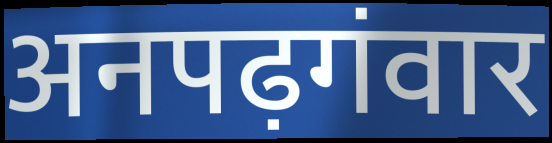
अनपढ़गंवार